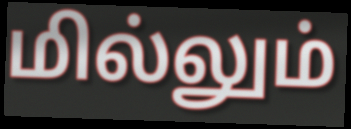
மில்லும்